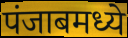
पंजाबमध्ये